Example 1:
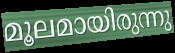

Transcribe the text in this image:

മൂലമായിരുന്നു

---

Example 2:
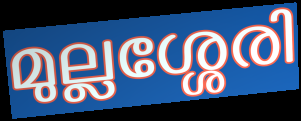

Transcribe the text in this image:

മുല്ലശ്ശേരി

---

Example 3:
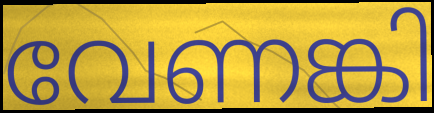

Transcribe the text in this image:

വേണങ്കി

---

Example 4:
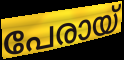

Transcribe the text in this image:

പേരായ്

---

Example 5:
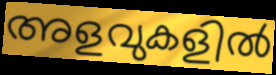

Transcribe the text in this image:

അളവുകളിൽ